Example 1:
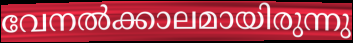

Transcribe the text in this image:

വേനൽക്കാലമായിരുന്നു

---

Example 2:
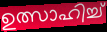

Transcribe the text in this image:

ഉത്സാഹിച്ച്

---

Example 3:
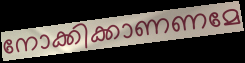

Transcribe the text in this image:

നോക്കിക്കാണണമേ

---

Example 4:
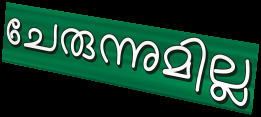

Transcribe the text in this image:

ചേരുന്നുമില്ല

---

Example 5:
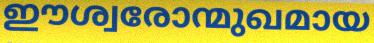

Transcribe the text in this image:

ഈശ്വരോന്മുഖമായ